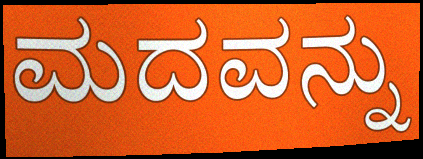
ಮದವನ್ನು